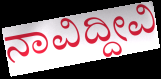
ನಾವಿದ್ದೀವಿ